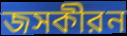
জসকীরন